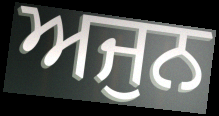
ਅਜੁਨ